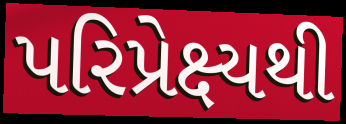
પરિપ્રેક્ષ્યથી